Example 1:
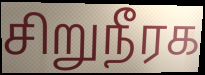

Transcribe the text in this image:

சிறுநீரக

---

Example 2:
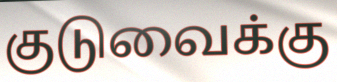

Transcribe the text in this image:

குடுவைக்கு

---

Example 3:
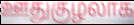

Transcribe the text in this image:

ஊதுகுழலாக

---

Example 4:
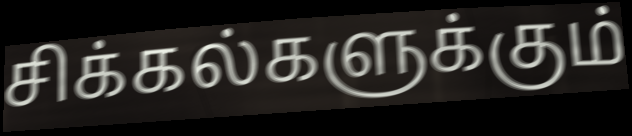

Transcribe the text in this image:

சிக்கல்களுக்கும்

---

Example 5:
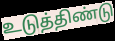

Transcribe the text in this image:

உடுத்திண்டு